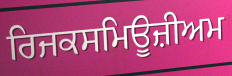
ਰਿਜਕਸਮਿਊਜ਼ੀਅਮ